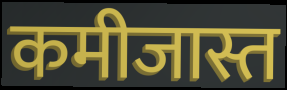
कमीजास्त